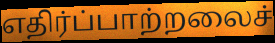
எதிர்ப்பாற்றலைச்